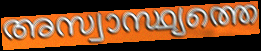
അസ്വാസ്ഥ്യത്തെ